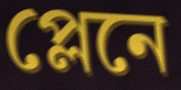
প্লেনে